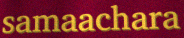
samaachara